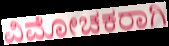
ವಿಮೋಚಕರಾಗಿ